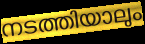
നടത്തിയാലും